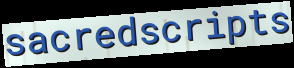
sacredscripts